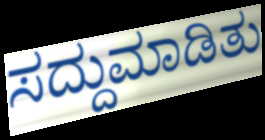
ಸದ್ದುಮಾಡಿತು